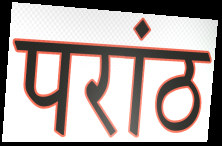
परांठ